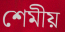
শেমীয়